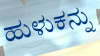
ಹುಳುಕನ್ನು